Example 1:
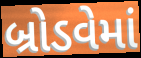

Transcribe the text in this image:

બ્રોડવેમાં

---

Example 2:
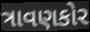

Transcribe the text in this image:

ત્રાવણકોર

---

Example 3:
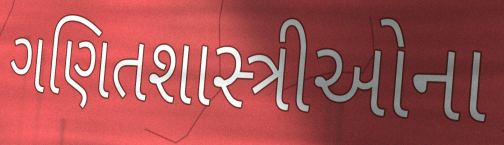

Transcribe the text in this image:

ગણિતશાસ્ત્રીઓના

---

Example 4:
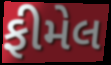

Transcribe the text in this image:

ફીમેલ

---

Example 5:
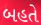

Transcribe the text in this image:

બહતે